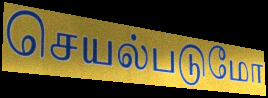
செயல்படுமோ